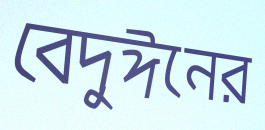
বেদুঈনের